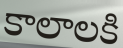
కాలాలకి